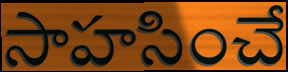
సాహసించే